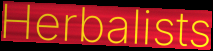
Herbalists